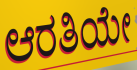
ಆರತಿಯೇ